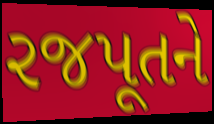
રજપૂતને